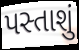
પસ્તાશું